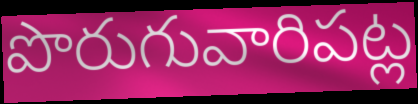
పొరుగువారిపట్ల